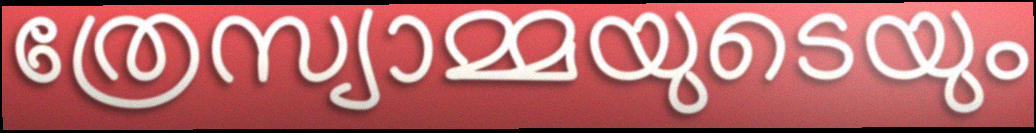
ത്രേസ്യാമ്മയുടെയും